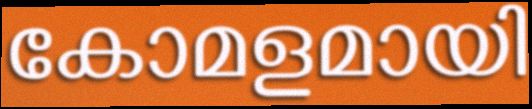
കോമളമായി